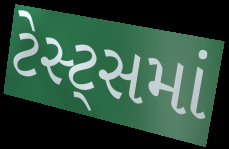
ટેસ્ટ્સમાં